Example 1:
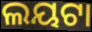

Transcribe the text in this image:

ଲୟଟା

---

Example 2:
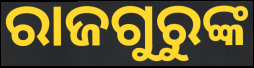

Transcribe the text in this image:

ରାଜଗୁରୁଙ୍କ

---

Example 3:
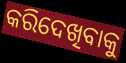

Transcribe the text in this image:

କରିଦେଖିବାକୁ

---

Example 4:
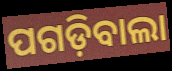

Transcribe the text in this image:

ପଗଡ଼ିବାଲା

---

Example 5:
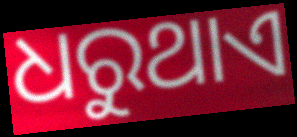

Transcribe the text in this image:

ଧରୁଥାଏ